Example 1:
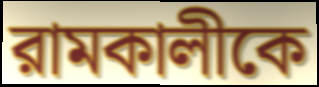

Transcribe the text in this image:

রামকালীকে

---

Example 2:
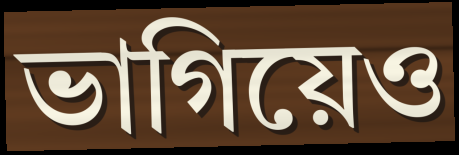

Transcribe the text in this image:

ভাগিয়েও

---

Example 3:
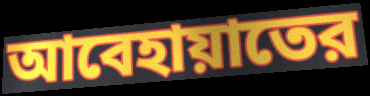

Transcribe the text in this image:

আবেহায়াতের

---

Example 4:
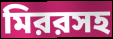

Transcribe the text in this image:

মিররসহ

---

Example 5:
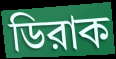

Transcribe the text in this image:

ডিরাক